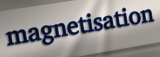
magnetisation